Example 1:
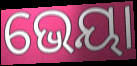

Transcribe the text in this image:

ଭେୟା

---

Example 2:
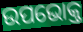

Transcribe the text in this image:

ଉପଭୋକ୍ତ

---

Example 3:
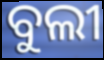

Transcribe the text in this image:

ବୁଲୀ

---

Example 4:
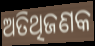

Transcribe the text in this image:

ଅତିଥିଜଣକ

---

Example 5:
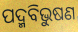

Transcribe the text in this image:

ପଦ୍ମବିଭୁଷଣ